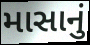
માસાનું